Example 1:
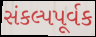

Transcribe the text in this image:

સંકલ્પપૂર્વક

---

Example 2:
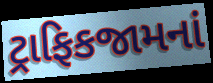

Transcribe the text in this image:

ટ્રાફિકજામનાં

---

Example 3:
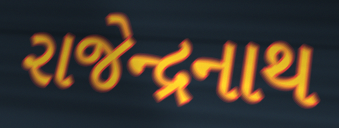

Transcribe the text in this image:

રાજેન્દ્રનાથ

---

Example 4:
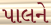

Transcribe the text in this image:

પાલને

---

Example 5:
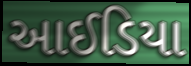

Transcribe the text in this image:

આઈડિયા